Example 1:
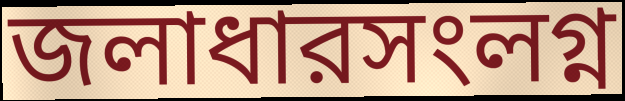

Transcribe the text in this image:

জলাধারসংলগ্ন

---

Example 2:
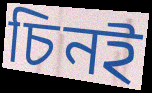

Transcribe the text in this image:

চিনই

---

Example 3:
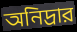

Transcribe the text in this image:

অনিদ্রার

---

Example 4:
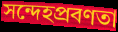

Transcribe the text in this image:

সন্দেহপ্রবণতা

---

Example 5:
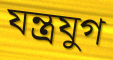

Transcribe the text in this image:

যন্ত্রযুগ